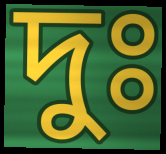
দুঃ